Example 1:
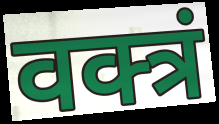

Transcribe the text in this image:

वक्त्रं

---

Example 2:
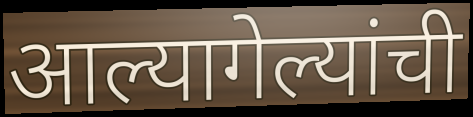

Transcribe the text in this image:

आल्यागेल्यांची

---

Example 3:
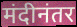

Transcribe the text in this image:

मंदीनंतर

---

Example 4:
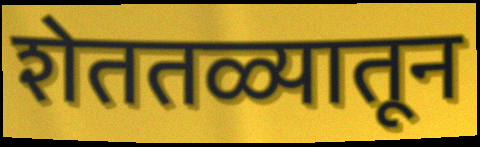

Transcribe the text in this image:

शेततळ्यातून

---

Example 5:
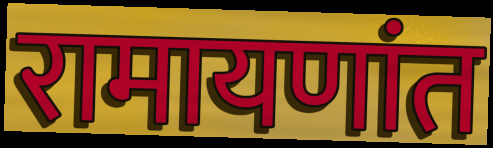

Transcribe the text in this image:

रामायणांत